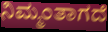
ನಿಮ್ಮಂತಾಗದೆ